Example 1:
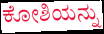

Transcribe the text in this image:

ಕೋಶಿಯನ್ನು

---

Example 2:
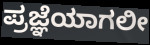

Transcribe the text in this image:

ಪ್ರಜ್ಞೆಯಾಗಲೀ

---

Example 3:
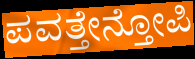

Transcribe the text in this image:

ಪವತ್ತೇನ್ತೋಪಿ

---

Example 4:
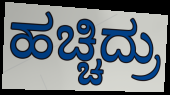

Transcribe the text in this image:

ಹಚ್ಚಿದ್ರು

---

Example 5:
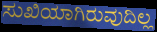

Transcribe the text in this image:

ಸುಖಿಯಾಗಿರುವುದಿಲ್ಲ